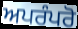
ਅਪਰੰਪਰੋ